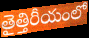
తైత్తిరీయంలో